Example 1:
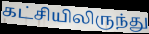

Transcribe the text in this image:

கட்சியிலிருந்து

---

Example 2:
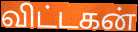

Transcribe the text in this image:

விட்டகன்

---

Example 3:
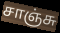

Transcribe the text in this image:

சாஞ்சு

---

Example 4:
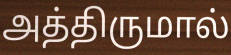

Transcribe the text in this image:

அத்திருமால்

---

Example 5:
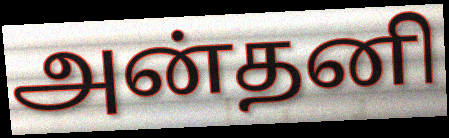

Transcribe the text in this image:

அன்தனி